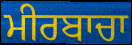
ਮੀਰਬਾਚਾ